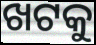
ଖଟକୁ